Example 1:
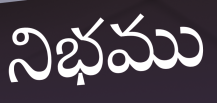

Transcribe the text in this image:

నిభము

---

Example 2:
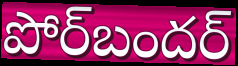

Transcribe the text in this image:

పోర్‌బందర్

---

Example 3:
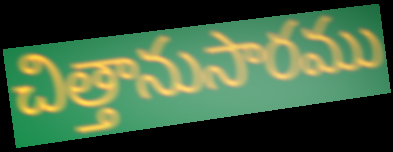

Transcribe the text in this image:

చిత్తానుసారము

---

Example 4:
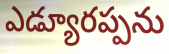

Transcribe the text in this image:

ఎడ్యూరప్పను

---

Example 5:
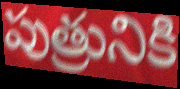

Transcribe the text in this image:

పుత్రునికి